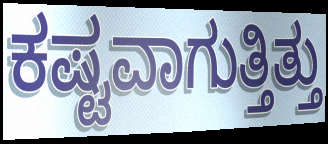
ಕಷ್ಟವಾಗುತ್ತಿತ್ತು